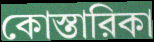
কোস্তারিকা